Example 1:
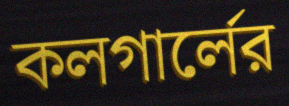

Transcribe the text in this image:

কলগার্লের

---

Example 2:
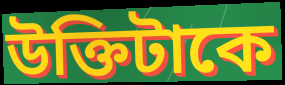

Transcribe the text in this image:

উক্তিটাকে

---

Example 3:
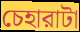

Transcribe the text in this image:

চেহারাটা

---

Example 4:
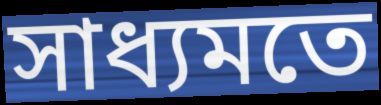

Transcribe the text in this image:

সাধ্যমতে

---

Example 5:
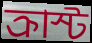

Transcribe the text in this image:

ক্রাস্ট